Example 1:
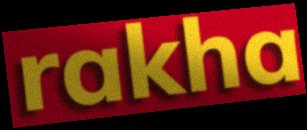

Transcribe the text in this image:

rakha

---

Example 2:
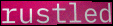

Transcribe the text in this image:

rustled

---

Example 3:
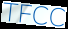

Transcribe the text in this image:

TFCC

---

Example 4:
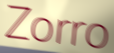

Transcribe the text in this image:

Zorro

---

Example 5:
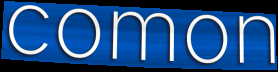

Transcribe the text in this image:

comon